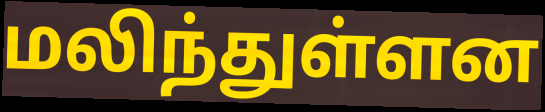
மலிந்துள்ளன